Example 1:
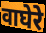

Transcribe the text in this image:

वाघेरे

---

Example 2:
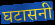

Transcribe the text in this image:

घटासनी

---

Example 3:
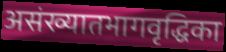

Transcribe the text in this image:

असंख्यातभागवृद्धिका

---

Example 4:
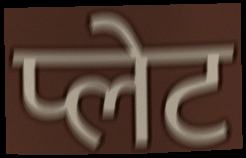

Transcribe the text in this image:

प्‍लेट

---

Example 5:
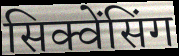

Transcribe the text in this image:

सिक्‍वेंसिंग